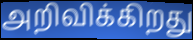
அறிவிக்கிறது